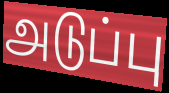
அடுப்பு